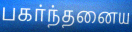
பகர்ந்தனைய